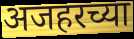
अजहरच्या